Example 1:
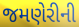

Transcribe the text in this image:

જમણેરીની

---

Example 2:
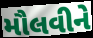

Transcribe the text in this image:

મૌલવીને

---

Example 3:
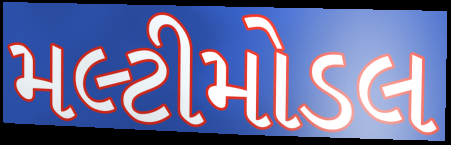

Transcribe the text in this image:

મલ્ટીમોડલ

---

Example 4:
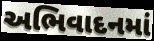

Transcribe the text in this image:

અભિવાદનમાં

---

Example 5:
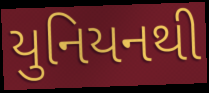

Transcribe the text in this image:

યુનિયનથી